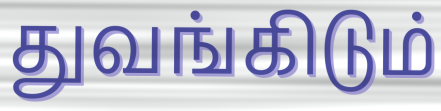
துவங்கிடும்